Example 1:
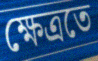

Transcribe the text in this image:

ক্ষেত্ৰতে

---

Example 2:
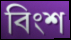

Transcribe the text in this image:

বিংশ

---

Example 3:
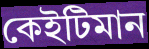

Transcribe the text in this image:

কেইটিমান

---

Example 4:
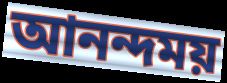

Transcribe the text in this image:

আনন্দময়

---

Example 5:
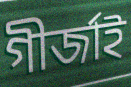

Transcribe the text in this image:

গীৰ্জাই